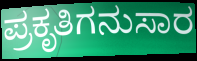
ಪ್ರಕೃತಿಗನುಸಾರ